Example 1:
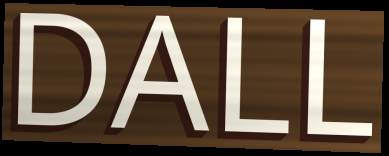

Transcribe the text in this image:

DALL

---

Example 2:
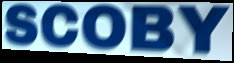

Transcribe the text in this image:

SCOBY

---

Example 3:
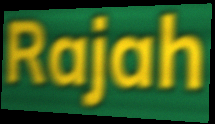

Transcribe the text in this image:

Rajah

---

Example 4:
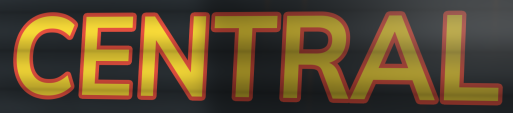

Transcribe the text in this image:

CENTRAL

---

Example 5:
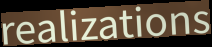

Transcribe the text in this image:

realizations